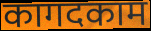
कागदकाम